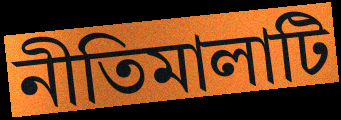
নীতিমালাটি